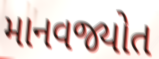
માનવજ્યોત